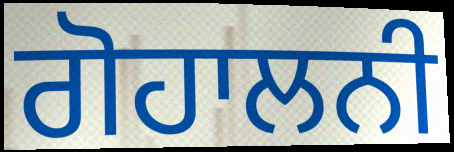
ਗੋਹਾਲਨੀ